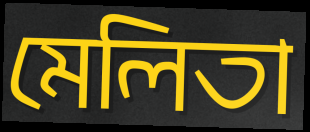
মেলিতা